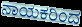
ನಾಯಕರಿಂದ